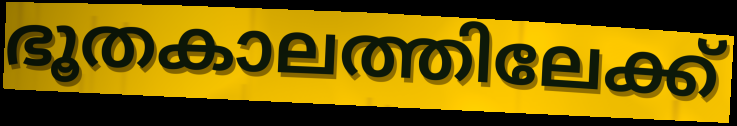
ഭൂതകാലത്തിലേക്ക്